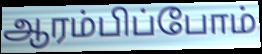
ஆரம்பிப்போம்